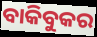
ବାକିବୁକର